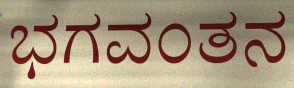
ಭಗವಂತನ